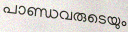
പാണ്ഡവരുടെയും